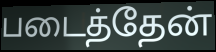
படைத்தேன்